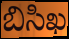
బిసిఖ